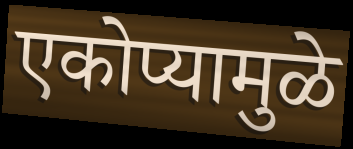
एकोप्यामुळे